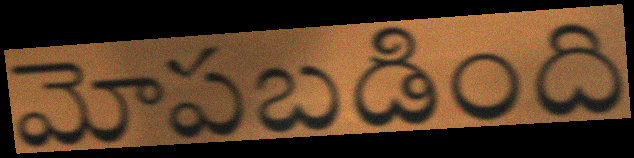
మోపబడింది